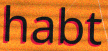
habt